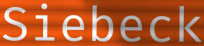
Siebeck